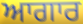
ਆਗਾਰ